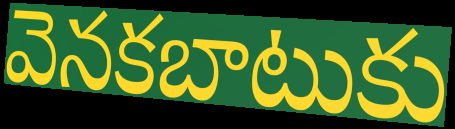
వెనకబాటుకు